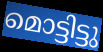
മൊട്ടിട്ടു